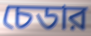
চেডার